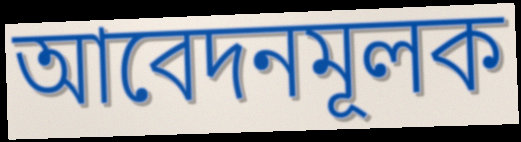
আবেদনমূলক